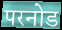
परनोड